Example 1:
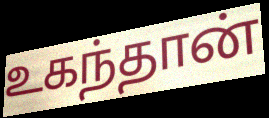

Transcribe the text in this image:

உகந்தான்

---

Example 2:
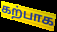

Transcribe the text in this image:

கற்பாக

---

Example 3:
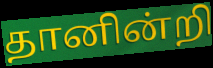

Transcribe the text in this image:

தானின்றி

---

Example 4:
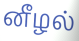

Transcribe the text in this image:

னீழல்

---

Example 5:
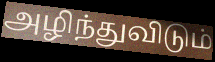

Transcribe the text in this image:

அழிந்துவிடும்